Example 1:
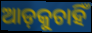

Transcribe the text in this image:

ଆଡ଼କୁଚାହିଁ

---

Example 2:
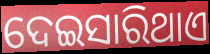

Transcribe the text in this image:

ଦେଇସାରିଥାଏ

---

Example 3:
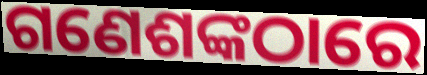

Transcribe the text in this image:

ଗଣେଶଙ୍କଠାରେ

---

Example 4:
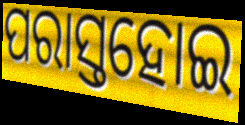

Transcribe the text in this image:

ପରାସ୍ତହୋଇ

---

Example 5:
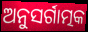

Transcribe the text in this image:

ଅନୁସର୍ଗାତ୍ମକ